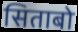
सिताबो